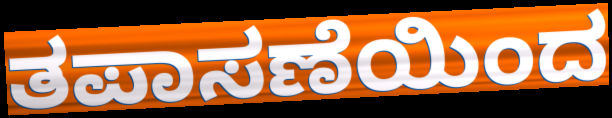
ತಪಾಸಣೆಯಿಂದ